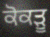
ਕੋਕੜੂ